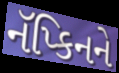
નૅપ્કિનને